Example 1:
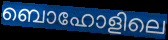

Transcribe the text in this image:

ബൊഹോളിലെ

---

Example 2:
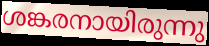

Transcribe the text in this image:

ശങ്കരനായിരുന്നു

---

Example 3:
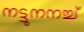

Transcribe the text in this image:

നട്ടുനനച്ച്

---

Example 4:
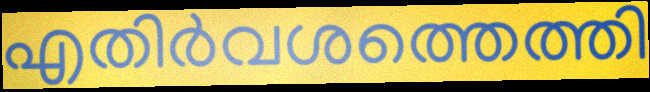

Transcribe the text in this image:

എതിർവശത്തെത്തി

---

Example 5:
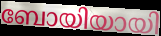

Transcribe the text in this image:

ബോയിയായി